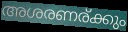
അശരണര്ക്കും